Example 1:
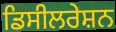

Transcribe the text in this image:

ਡਿਸੀਲਰੇਸ਼ਨ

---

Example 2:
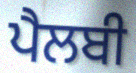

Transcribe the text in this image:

ਪੈਲਬੀ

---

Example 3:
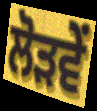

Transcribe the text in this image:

ਲੋੜਵੇਂ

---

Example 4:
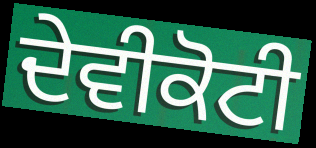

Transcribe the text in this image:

ਦੇਵੀਕੋਟੀ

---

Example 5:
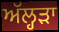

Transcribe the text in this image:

ਅੱਲ੍ਹੜਾ